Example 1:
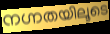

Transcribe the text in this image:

നഗ്നതയിലൂടെ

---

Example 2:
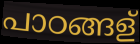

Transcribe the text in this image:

പാഠങ്ങള്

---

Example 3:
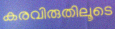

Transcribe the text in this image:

കരവിരുതിലൂടെ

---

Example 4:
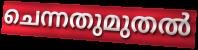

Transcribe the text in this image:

ചെന്നതുമുതൽ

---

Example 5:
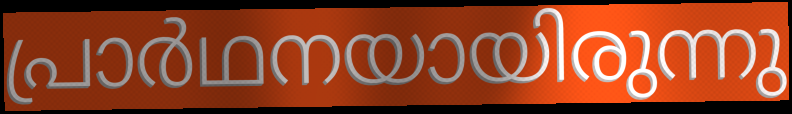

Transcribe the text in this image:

പ്രാർഥനയായിരുന്നു